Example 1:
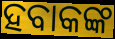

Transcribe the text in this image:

ହବାକଙ୍କ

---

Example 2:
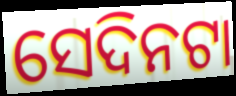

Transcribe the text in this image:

ସେଦିନଟା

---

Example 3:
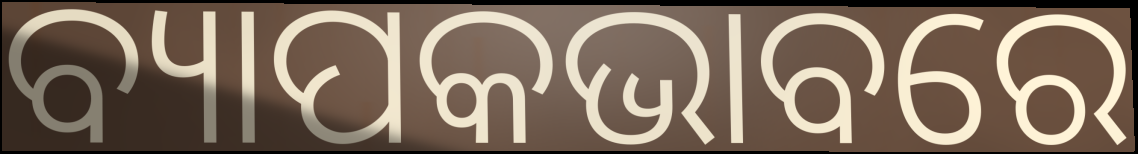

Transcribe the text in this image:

ବ୍ୟାପକଭାବରେ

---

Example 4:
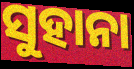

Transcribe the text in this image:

ସୁହାନା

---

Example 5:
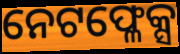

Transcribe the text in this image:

ନେଟଫ୍ଳେକ୍ସ